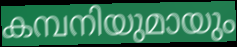
കമ്പനിയുമായും